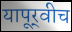
यापूर्वीच